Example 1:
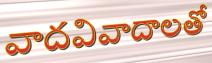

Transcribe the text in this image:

వాదవివాదాలతో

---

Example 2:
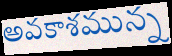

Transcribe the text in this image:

అవకాశమున్న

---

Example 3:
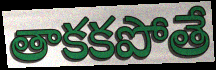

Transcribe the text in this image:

తాకకపోతే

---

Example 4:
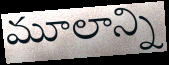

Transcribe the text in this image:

మూలాన్ని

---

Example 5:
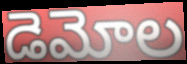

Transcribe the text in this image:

డెమోల